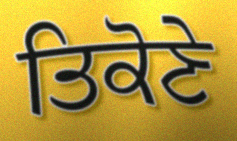
ਤਿਕੋਣੇ